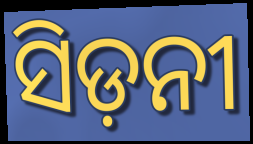
ସିଡ଼ନୀ